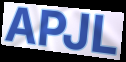
APJL